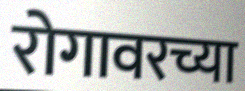
रोगावरच्या